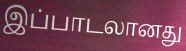
இப்பாடலானது